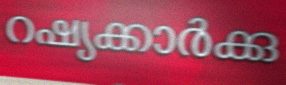
റഷ്യക്കാർക്കു